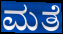
ಮತೆ